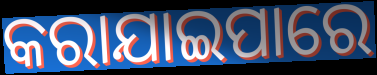
କରାଯାଇପାରେ